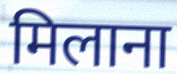
मिलाना